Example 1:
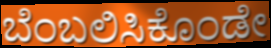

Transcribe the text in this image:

ಬೆಂಬಲಿಸಿಕೊಂಡೇ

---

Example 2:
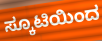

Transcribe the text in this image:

ಸ್ಕೂಟಿಯಿಂದ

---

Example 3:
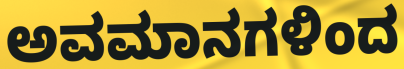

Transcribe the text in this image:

ಅವಮಾನಗಳಿಂದ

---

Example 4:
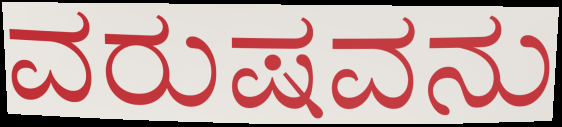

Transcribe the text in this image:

ವರುಷವನು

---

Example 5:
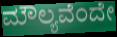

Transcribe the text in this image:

ಮೌಲ್ಯವೆಂದೇ